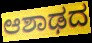
ಆಶಾಢದ